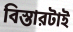
বিস্তারটাই